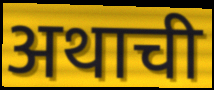
अथाची